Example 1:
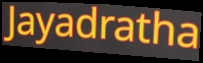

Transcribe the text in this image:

Jayadratha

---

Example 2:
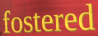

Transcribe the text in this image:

fostered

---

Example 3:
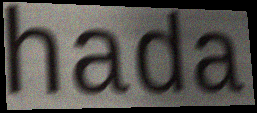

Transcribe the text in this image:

hada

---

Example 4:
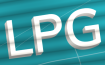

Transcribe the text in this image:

LPG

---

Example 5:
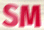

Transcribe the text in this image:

SM